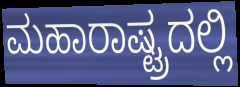
ಮಹಾರಾಷ್ಟ್ರದಲ್ಲಿ